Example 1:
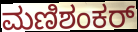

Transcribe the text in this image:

ಮಣಿಶಂಕರ್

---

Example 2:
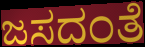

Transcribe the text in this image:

ಜಸದಂತೆ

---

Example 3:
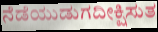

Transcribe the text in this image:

ನೆಡೆಯುಡುಗದೀಕ್ಷಿಸುತ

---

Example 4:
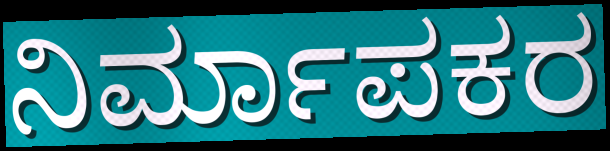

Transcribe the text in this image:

ನಿರ್ಮಾಪಕರ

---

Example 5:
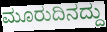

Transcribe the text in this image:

ಮೂರುದಿನದ್ದು